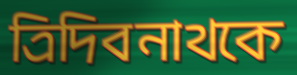
ত্রিদিবনাথকে